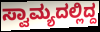
ಸ್ವಾಮ್ಯದಲ್ಲಿದ್ದ